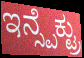
ಇನ್ಸ್ಪೆಕ್ಟ್ರು